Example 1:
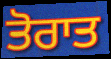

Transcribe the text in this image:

ਤੋਰਾਤ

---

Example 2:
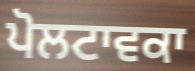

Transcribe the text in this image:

ਪੋਲਟਾਵਕਾ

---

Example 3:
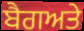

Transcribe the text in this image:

ਬੈਗਅਤੇ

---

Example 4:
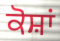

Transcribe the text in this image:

ਕੋਸ਼ਾਂ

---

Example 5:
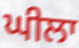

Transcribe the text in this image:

ਘੀਲਾ